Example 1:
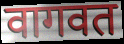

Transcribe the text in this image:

वागवत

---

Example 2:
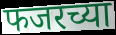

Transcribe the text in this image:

फजरच्या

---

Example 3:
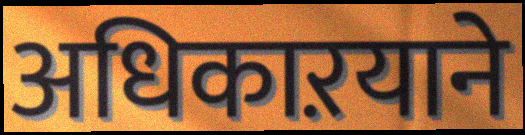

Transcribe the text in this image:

अधिकाऱयाने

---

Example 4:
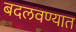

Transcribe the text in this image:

बदलवण्यात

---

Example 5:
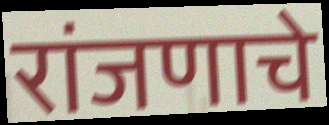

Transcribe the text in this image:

रांजणाचे